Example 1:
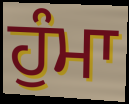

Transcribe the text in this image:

ਹੁੰਮਾ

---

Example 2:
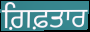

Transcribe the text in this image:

ਗ਼ਿਫ਼ਤਾਰ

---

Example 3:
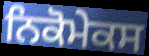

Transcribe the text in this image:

ਨਿਕੋਮੇਕਸ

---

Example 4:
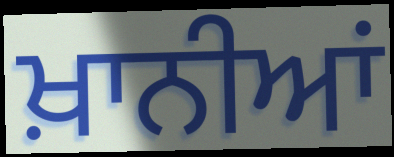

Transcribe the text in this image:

ਖ਼ਾਨੀਆਂ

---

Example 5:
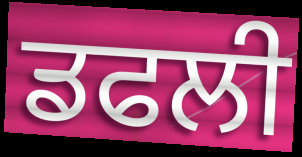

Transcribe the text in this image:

ਡਫਲੀ